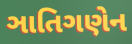
ઞાતિગણેન